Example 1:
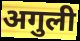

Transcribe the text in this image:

अगुली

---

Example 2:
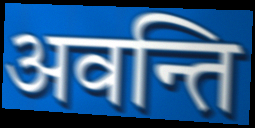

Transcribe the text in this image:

अवन्ति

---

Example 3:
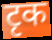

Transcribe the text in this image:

टृक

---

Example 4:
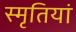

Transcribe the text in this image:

स्मृतियां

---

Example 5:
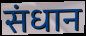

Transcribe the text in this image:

संधान